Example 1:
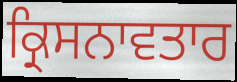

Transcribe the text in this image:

ਕ੍ਰਿਸਨਾਵਤਾਰ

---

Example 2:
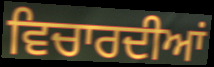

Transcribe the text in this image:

ਵਿਚਾਰਦੀਆਂ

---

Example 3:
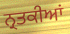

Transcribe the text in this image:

ਨ੍ਰਤਕੀਆਂ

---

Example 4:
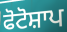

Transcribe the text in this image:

ਫੋਟੋਸ਼ਾਪ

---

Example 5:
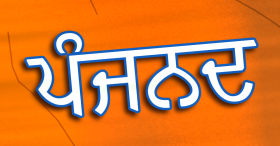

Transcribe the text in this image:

ਪੰਜਨਦ